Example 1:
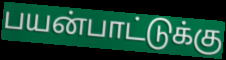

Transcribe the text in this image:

பயன்பாட்டுக்கு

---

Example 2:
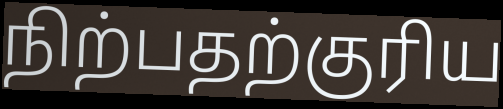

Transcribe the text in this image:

நிற்பதற்குரிய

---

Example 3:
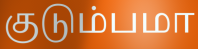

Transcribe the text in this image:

குடும்பமா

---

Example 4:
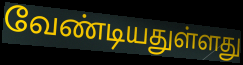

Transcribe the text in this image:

வேண்டியதுள்ளது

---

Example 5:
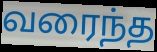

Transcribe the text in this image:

வரைந்த